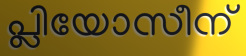
പ്ലിയോസീന്